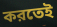
করতেই